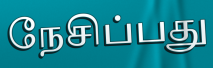
நேசிப்பது